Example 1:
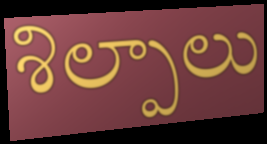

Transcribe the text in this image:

శిల్పాలు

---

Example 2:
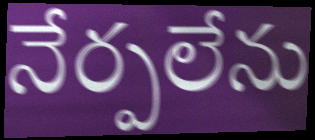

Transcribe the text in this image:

నేర్పలేను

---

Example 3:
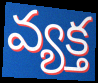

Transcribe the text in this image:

వ్యక్త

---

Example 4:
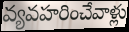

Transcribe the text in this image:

వ్యవహరించేవాళ్లు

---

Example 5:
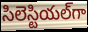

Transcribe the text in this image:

సిలెస్టియల్‌గా